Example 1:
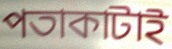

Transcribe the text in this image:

পতাকাটাই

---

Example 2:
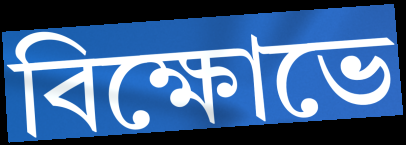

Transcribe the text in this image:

বিক্ষোভে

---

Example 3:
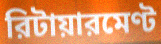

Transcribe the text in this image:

রিটায়ারমেণ্ট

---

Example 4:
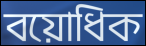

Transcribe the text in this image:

বয়োধিক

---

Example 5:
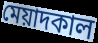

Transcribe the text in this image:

মেয়াদকাল